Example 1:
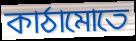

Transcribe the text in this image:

কাঠামোতে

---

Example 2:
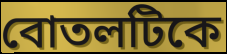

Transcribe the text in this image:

বোতলটিকে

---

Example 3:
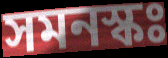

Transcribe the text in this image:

সমনস্কঃ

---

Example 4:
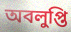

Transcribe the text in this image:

অবলুপ্তি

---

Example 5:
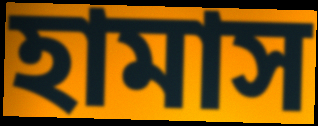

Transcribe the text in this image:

হামাস